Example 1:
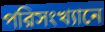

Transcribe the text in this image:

পরিসংখ্যানে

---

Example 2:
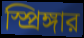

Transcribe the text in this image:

স্প্রিঙ্গার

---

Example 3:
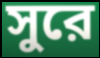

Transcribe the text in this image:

সুরে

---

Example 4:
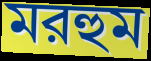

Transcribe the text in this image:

মরহুম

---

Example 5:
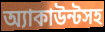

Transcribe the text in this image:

অ্যাকাউন্টসহ